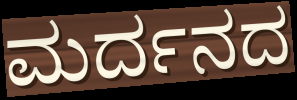
ಮರ್ದನದ